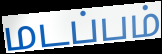
மடப்பம்